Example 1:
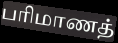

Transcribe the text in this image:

பரிமாணத்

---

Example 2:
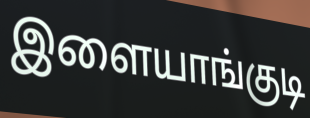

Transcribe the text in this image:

இளையாங்குடி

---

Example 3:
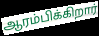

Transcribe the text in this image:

ஆரம்பிக்கிறார்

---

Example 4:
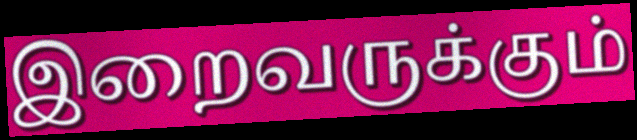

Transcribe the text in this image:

இறைவருக்கும்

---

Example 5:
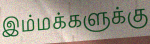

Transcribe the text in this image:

இம்மக்களுக்கு